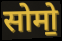
सोमो॒